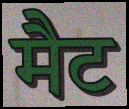
मैट